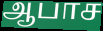
ஆபாச